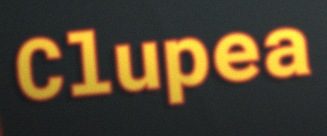
Clupea